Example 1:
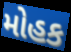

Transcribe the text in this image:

મોહક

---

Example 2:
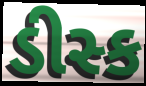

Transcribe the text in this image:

ડીસ્ક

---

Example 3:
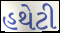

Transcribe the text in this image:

હથેટી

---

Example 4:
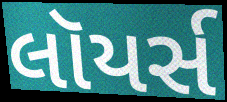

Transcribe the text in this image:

લૉયર્સ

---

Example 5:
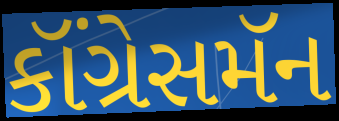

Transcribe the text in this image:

કૉંગ્રેસમૅન